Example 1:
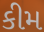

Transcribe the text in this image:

કીમ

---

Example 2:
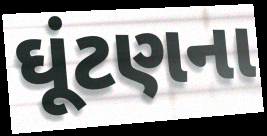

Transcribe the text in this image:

ઘૂંટણના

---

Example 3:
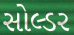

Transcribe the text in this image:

સોલ્ડર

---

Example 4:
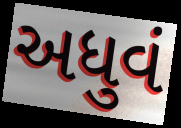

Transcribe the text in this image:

અધુવં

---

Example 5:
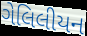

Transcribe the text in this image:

ગેલિલીયન